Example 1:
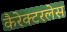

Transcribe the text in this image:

कैरेक्टरलेस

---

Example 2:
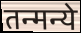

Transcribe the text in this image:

तन्मन्ये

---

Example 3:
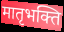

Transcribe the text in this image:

मातृभक्ति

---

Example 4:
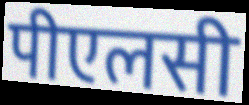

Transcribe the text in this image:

पीएलसी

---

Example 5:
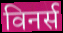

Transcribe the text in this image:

विनर्स